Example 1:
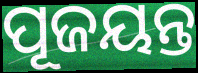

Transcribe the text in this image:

ପୂଜୟନ୍ତ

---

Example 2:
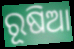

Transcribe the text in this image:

ରୂଷିଆ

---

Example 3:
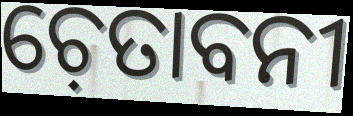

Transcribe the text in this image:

ଚ଼େତାବନୀ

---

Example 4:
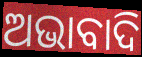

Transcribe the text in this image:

ଅଭାବାଦି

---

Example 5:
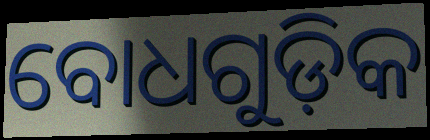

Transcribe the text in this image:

ବୋଧଗୁଡ଼ିକ